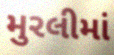
મુરલીમાં